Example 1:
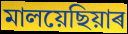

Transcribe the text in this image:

মালয়েছিয়াৰ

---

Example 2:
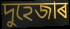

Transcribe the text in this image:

দুহেজাৰ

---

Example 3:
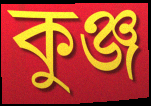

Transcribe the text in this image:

কুঞ্জ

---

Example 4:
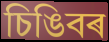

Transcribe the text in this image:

চিঙিবৰ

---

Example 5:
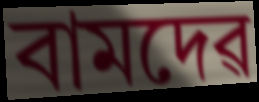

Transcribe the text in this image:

বামদেৱ